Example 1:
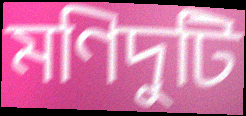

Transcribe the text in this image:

মণিদুটি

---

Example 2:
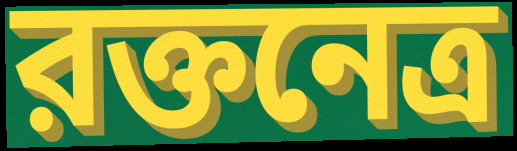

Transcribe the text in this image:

রক্তনেত্র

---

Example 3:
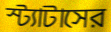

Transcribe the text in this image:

স্ট্যাটাসের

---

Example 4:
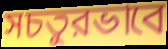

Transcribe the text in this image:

সচতুরভাবে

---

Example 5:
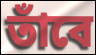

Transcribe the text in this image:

তাঁবে